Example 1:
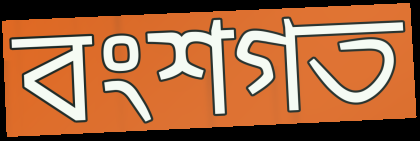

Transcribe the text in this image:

বংশগত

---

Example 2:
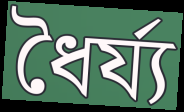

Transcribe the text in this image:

ধৈৰ্য্য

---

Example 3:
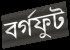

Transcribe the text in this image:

বৰ্গফুট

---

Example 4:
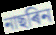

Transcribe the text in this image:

নাছৰিন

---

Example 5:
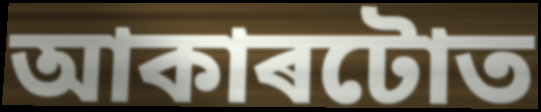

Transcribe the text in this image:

আকাৰটোত